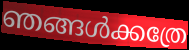
ഞങ്ങൾക്കത്രേ